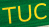
TUC